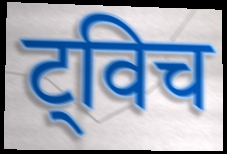
ट्विच